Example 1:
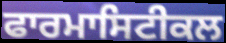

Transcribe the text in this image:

ਫਾਰਮਾਸਿਟੀਕਲ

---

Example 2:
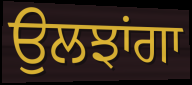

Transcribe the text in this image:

ਉਲਝਾਂਗਾ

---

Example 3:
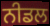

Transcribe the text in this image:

ਨੀਡਲ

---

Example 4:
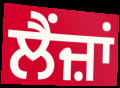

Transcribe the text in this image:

ਲੈਂਜ਼ਾਂ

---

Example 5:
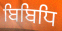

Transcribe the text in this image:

ਬਿਬਿਧਿ